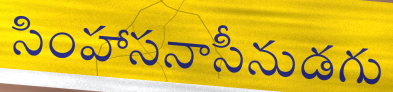
సింహాసనాసీనుడగు